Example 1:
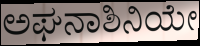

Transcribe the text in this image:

ಅಘನಾಶಿನಿಯೇ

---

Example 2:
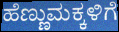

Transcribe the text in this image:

ಹೆಣ್ಣುಮಕ್ಕಳಿಗೆ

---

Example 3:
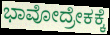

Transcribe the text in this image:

ಭಾವೋದ್ರೇಕಕ್ಕೆ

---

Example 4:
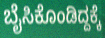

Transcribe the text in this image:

ಬೈಸಿಕೊಂಡಿದ್ದಕ್ಕೆ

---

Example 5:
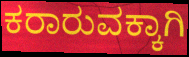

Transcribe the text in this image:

ಕರಾರುವಕ್ಕಾಗಿ